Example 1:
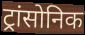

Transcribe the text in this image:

ट्रांसोनिक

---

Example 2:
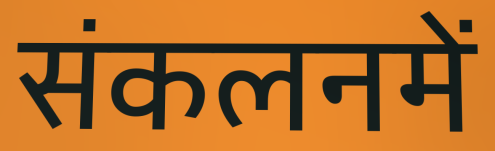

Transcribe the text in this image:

संकलनमें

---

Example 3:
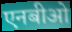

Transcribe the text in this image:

एनबीओ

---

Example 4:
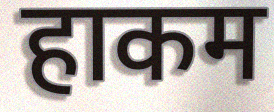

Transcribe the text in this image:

हाकम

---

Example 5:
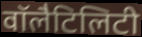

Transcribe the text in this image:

वॉलैटिलिटी